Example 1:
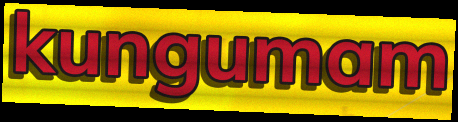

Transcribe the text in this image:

kungumam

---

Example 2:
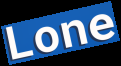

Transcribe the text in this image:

Lone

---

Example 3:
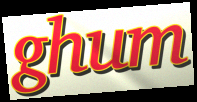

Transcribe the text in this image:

ghum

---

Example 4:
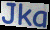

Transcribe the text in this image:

Jka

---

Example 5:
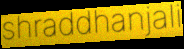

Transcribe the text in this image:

shraddhanjali